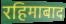
रहिमाबाद